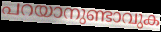
പറയാനുണ്ടാവുക